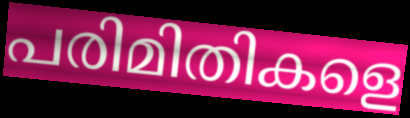
പരിമിതികളെ